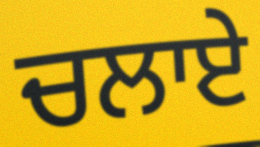
ਚਲਾਏ